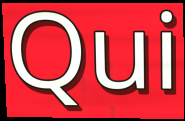
Qui